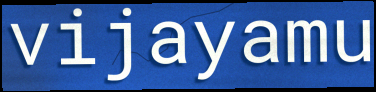
vijayamu